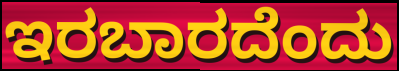
ಇರಬಾರದೆಂದು